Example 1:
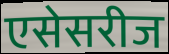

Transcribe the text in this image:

एसेसरीज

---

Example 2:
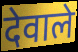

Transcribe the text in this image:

देवाले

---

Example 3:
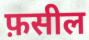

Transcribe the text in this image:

फ़सील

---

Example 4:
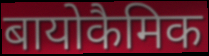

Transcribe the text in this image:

बायोकैमिक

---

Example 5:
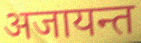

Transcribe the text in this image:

अजायन्त